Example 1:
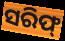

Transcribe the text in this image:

ସରିଫ୍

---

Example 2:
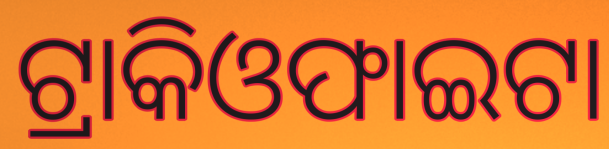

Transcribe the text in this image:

ଟ୍ରାକିଓଫାଇଟା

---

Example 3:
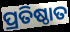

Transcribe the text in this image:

ପ୍ରତିଷ୍ଠାତ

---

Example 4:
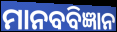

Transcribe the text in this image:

ମାନବବିଜ୍ଞାନ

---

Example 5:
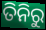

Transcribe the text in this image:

ତିନିରୁ